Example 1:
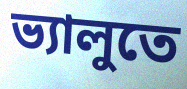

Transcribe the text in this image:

ভ্যালুতে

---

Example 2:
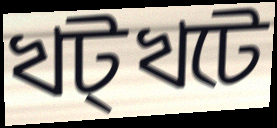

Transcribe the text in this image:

খট্‌খটে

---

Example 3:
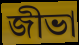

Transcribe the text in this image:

জীভা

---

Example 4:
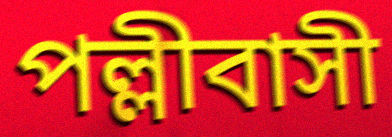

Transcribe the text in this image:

পল্লীবাসী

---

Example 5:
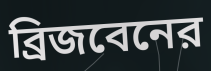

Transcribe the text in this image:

ব্রিজবেনের